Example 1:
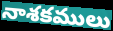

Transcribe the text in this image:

నాశకములు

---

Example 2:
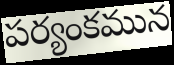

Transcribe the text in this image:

పర్యంకమున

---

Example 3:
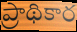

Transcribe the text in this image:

ప్రాథికార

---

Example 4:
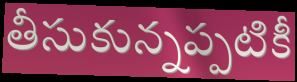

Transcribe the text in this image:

తీసుకున్నప్పటికీ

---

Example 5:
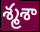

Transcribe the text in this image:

శ్మశా